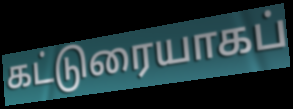
கட்டுரையாகப்